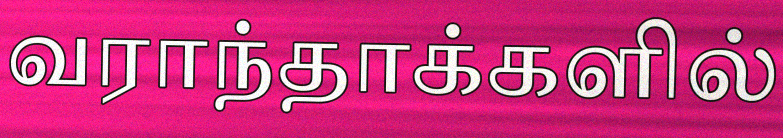
வராந்தாக்களில்